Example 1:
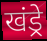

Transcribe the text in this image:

खंड्रे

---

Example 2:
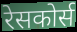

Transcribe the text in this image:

रेसकोर्स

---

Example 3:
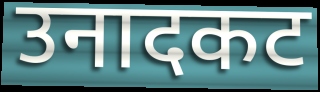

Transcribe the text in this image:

उनादकट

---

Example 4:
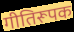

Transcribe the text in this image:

गीतिरूपक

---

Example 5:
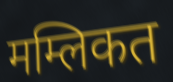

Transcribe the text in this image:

मम्लिकत